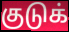
குடுக்